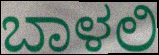
ಬಾಳಲಿ